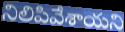
నిలిపివేశాయని